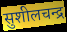
सुशीलचन्द्र